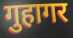
गुहागर